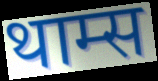
थाम्स